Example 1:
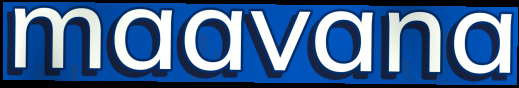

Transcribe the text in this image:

maavana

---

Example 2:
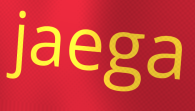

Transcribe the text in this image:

jaega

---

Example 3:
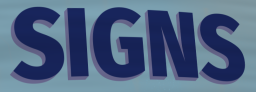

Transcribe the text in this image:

SIGNS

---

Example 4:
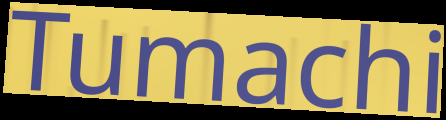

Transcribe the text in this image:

Tumachi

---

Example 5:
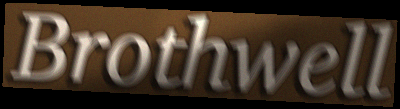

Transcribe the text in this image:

Brothwell